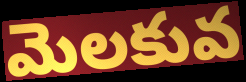
మెలకువ